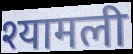
श्यामली